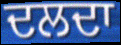
ਦਲਦਾ